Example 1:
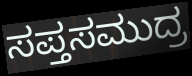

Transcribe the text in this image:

ಸಪ್ತಸಮುದ್ರ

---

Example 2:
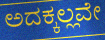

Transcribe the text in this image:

ಅದಕ್ಕಲ್ಲವೇ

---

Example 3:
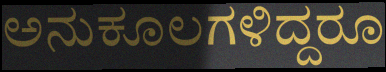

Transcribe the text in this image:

ಅನುಕೂಲಗಳಿದ್ದರೂ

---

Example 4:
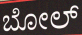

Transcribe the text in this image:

ಬೋಲ್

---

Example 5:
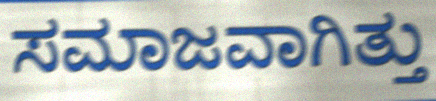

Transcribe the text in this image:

ಸಮಾಜವಾಗಿತ್ತು